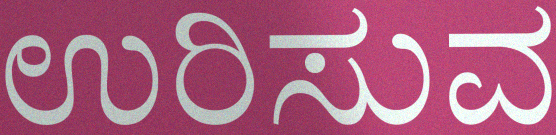
ಉರಿಸುವ